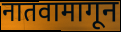
नातवामागून